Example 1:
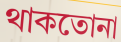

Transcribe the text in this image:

থাকতোনা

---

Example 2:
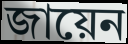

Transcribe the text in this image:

জায়েন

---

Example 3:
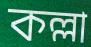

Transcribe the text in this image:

কল্লা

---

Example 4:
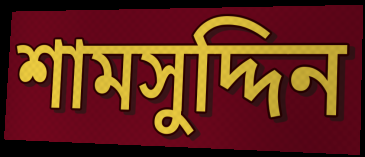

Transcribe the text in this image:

শামসুদ্দিন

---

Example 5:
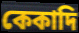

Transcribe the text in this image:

কেকাদি